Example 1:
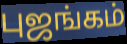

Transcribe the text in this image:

புஜங்கம்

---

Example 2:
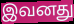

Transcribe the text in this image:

இவனது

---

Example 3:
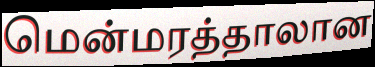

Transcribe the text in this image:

மென்மரத்தாலான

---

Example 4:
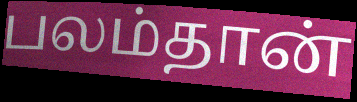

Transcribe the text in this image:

பலம்தான்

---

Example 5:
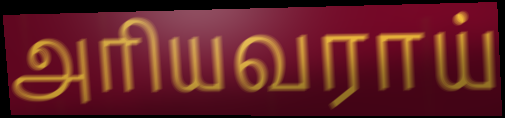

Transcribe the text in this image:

அரியவராய்